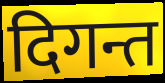
दिगन्त